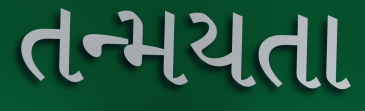
તન્મયતા